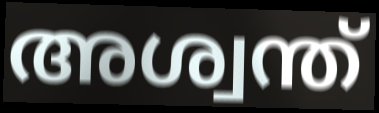
അശ്വന്ത്